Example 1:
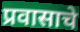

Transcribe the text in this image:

प्रवासाचे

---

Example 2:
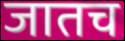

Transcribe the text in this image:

जातच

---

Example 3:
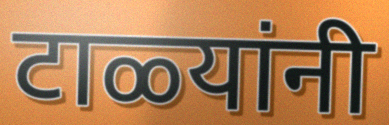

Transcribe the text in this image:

टाळ्यांनी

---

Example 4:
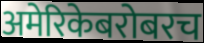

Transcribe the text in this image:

अमेरिकेबरोबरच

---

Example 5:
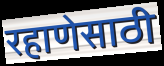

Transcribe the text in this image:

रहाणेसाठी